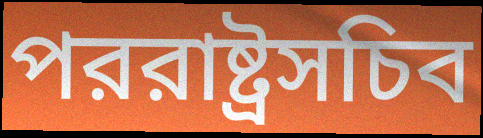
পররাষ্ট্রসচিব